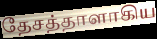
தேசத்தாளாகிய